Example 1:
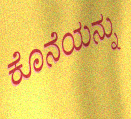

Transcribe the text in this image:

ಕೊನೆಯನ್ನು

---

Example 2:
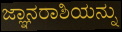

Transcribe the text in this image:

ಜ್ಞಾನರಾಶಿಯನ್ನು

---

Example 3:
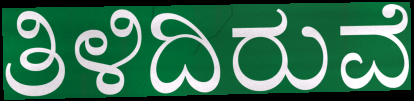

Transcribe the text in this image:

ತಿಳಿದಿರುವೆ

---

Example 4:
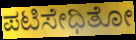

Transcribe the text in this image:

ಪಟಿಸೇಧಿತೋ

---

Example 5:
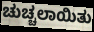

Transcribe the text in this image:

ಚುಚ್ಚಲಾಯಿತು